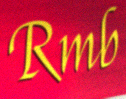
Rmb